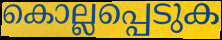
കൊല്ലപ്പെടുക